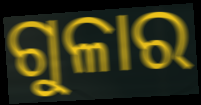
ଗୁଳାର